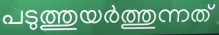
പടുത്തുയർത്തുന്നത്